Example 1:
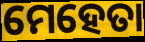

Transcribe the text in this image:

ମେହେତା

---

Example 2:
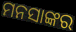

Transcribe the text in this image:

ମନସାଙ୍କର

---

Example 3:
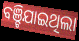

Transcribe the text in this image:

ବଞ୍ଚିଯାଇଥିଲା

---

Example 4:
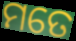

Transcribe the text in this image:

ମତେ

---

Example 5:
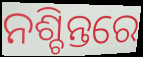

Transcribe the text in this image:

ନଶ୍ଚିନ୍ତରେ